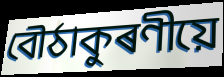
বৌঠাকুৰণীয়ে